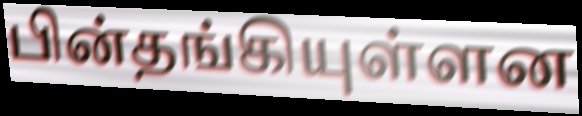
பின்தங்கியுள்ளன